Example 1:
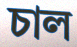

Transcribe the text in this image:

চাল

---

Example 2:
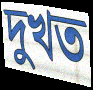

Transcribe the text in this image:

দুখত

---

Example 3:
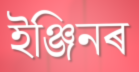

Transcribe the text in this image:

ইঞ্জিনৰ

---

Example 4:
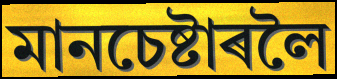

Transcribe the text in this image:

মানচেষ্টাৰলৈ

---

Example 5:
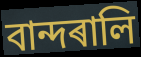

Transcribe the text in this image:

বান্দৰালি